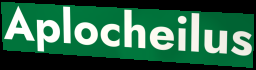
Aplocheilus